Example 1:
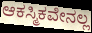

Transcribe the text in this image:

ಆಕಸ್ಮಿಕವೇನಲ್ಲ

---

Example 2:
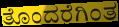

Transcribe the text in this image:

ತೊಂದರೆಗಿಂತ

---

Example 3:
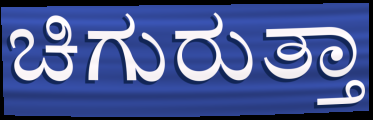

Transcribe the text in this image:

ಚಿಗುರುತ್ತಾ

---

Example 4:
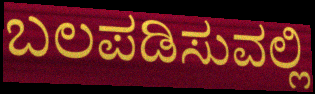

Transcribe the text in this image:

ಬಲಪಡಿಸುವಲ್ಲಿ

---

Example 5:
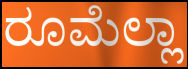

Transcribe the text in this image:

ರೂಮೆಲ್ಲಾ